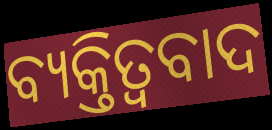
ବ୍ଯକ୍ତିତ୍ଵବାଦ